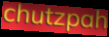
chutzpah